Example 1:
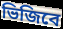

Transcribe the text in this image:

ভিজিবে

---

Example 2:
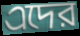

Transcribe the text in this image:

এদের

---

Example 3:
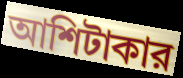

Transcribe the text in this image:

আশিটাকার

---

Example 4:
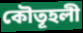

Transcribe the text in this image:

কৌতূহলী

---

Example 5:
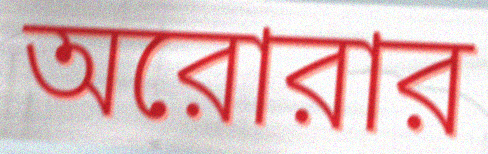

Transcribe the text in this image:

অরোরার